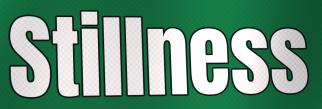
Stillness